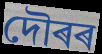
দৌৰৰ